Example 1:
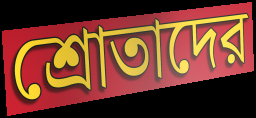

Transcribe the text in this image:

শ্রোতাদের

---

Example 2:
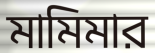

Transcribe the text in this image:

মামিমার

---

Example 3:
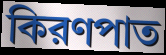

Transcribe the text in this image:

কিরণপাত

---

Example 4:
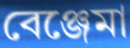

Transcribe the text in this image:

বেঞ্জেমা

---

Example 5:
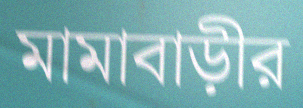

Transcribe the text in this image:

মামাবাড়ীর